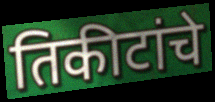
तिकीटांचे